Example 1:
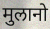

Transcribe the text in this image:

मुलानो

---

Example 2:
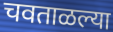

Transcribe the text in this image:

चवताळल्या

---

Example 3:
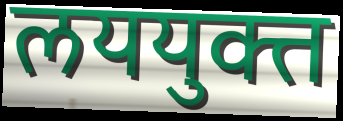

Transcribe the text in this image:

लययुक्त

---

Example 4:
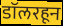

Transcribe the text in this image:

डॉलरहून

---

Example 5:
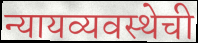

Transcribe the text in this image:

न्यायव्यवस्थेची